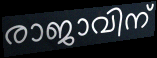
രാജാവിന്